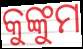
କୁଙ୍କୁମ